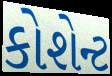
કોશેન્ટ